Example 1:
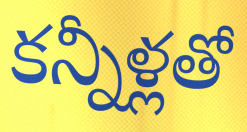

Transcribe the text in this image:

కన్నీళ్లతో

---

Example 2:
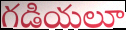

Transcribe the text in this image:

గడియలూ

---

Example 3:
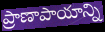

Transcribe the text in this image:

ప్రాణాపాయాన్ని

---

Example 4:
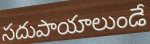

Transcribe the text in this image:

సదుపాయాలుండే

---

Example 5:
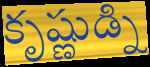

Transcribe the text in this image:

కృష్ణుడ్ని